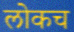
लोकच